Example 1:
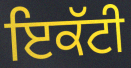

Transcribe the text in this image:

ਇਕੱਟੀ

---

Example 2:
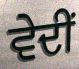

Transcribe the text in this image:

ਵੇਦੀਂ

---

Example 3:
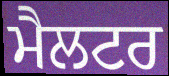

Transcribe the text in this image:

ਮੈਲਟਰ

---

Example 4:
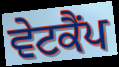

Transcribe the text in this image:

ਵੇਟਕੈਂਪ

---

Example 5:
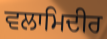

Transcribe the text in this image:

ਵਲਾਮਿਦੀਰ